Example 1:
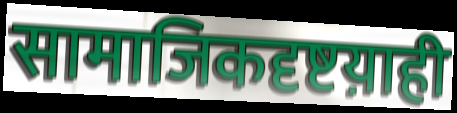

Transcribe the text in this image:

सामाजिकदृष्टय़ाही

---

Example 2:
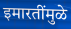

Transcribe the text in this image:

इमारतींमुळे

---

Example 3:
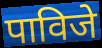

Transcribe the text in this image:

पाविजे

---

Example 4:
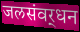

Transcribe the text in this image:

जलसंवर्धन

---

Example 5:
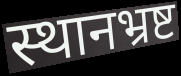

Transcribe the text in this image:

स्थानभ्रष्ट